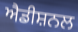
ਐਡੀਸ਼ਨਲ